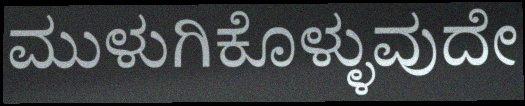
ಮುಳುಗಿಕೊಳ್ಳುವುದೇ